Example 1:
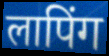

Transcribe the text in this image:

लापिंग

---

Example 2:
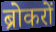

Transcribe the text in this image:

ब्रोकरों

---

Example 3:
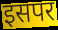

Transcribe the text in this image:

इसपर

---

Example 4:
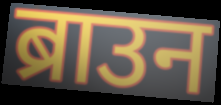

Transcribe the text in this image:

ब्राउन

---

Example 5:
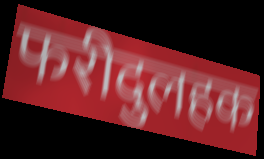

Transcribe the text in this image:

फरीदुलहक